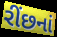
રીંછનાં